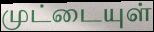
முட்டையுள்